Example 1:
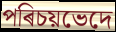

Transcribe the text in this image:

পৰিচয়ভেদে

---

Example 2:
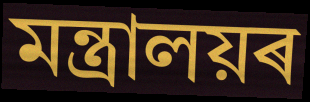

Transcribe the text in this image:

মন্ত্ৰালয়ৰ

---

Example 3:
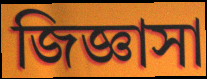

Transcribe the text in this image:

জিজ্ঞাসা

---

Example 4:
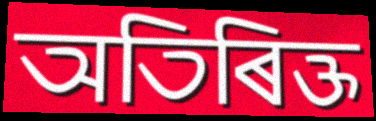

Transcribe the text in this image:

অতিৰিক্ত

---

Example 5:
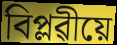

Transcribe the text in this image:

বিপ্লৱীয়ে